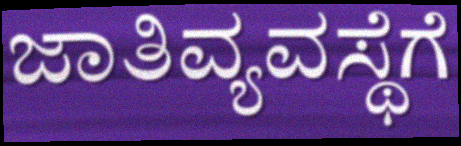
ಜಾತಿವ್ಯವಸ್ಥೆಗೆ